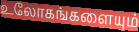
உலோகங்களையும்